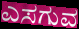
ಎಸಗುವ